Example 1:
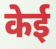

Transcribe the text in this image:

केई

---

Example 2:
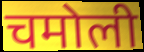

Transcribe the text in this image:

चमोली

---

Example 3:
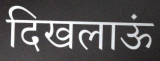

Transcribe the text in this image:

दिखलाऊं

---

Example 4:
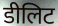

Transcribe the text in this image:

डीलिट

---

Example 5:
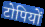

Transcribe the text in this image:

टोपियों